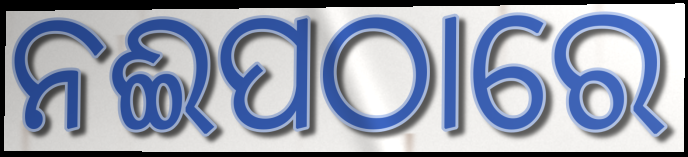
ନଈପଠାରେ